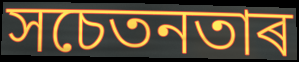
সচেতনতাৰ